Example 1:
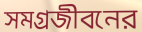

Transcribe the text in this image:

সমগ্রজীবনের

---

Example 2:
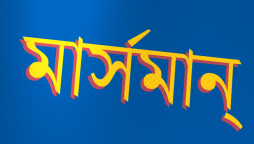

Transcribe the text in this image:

মার্সমান্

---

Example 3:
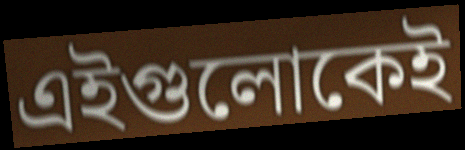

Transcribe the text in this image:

এইগুলোকেই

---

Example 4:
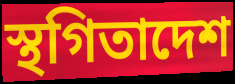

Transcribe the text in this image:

স্থগিতাদেশ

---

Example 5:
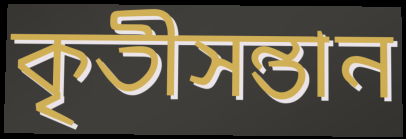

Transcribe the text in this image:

কৃতীসন্তান